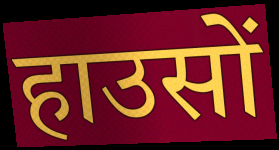
हाउसों